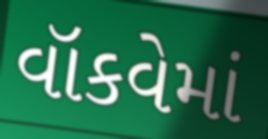
વૉકવેમાં